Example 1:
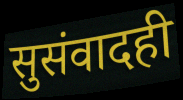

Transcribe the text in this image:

सुसंवादही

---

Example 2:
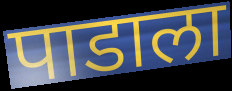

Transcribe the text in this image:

पाडाला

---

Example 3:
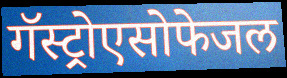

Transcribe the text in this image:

गॅस्ट्रोएसोफेजल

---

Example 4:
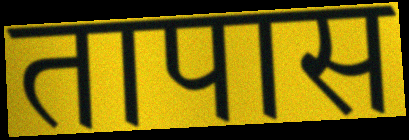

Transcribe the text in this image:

तापास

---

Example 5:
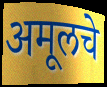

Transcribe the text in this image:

अमूलचे